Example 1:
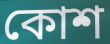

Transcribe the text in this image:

কোশ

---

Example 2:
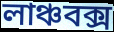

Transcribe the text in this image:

লাঞ্চবক্স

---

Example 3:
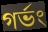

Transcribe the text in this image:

গর্ভং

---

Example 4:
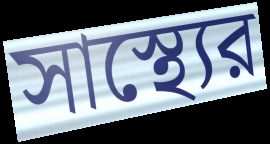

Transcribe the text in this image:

সাস্থ্যের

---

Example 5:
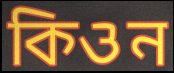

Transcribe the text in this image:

কিওন